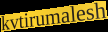
kvtirumalesh